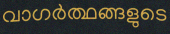
വാഗർത്ഥങ്ങളുടെ